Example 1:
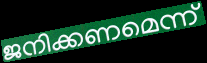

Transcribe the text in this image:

ജനിക്കണമെന്ന്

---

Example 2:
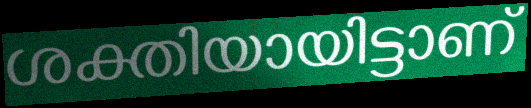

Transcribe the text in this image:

ശക്തിയായിട്ടാണ്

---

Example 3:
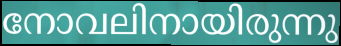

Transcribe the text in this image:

നോവലിനായിരുന്നു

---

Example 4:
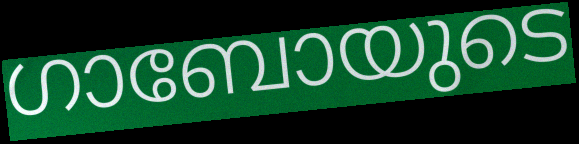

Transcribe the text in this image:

ഗാബോയുടെ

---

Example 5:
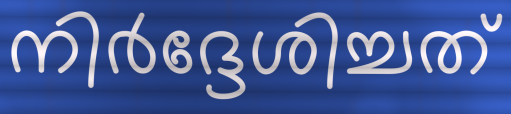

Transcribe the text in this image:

നിർദ്ദേശിച്ചത്